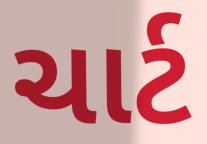
ચાર્ટ